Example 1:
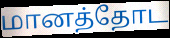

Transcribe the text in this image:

மானத்தோட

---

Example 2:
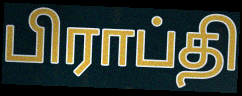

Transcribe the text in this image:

பிராப்தி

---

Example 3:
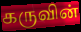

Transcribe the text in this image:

கருவின்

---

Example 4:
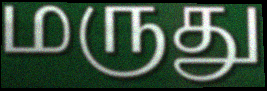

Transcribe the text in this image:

மருது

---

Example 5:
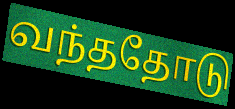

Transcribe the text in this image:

வந்ததோடு